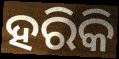
ହରିକି